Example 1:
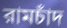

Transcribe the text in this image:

রামচাঁদ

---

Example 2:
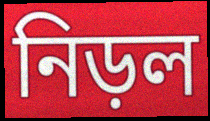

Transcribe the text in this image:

নিড়ল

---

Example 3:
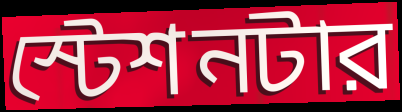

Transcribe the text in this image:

স্টেশনটার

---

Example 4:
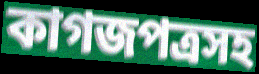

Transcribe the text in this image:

কাগজপত্রসহ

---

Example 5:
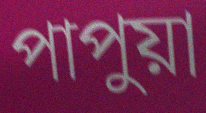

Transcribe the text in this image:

পাপুয়া